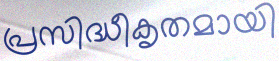
പ്രസിദ്ധീകൃതമായി